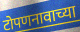
टोपणनावाच्या